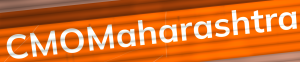
CMOMaharashtra